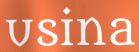
usina